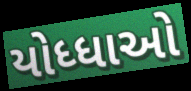
યોધ્ધાઓ